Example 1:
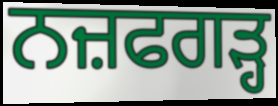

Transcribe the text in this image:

ਨਜ਼ਫਗੜ੍ਹ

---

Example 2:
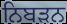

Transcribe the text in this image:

ਨਿਬੜਨ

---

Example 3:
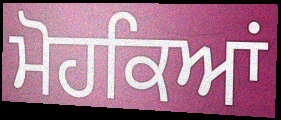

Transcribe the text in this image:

ਮੋਹਕਿਆਂ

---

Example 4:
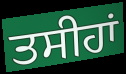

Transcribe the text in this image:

ਤਸੀਹਾਂ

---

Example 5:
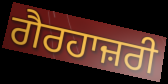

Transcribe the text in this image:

ਗੈਰਹਾਜ਼ਰੀ